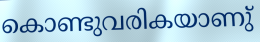
കൊണ്ടുവരികയാണു്